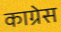
काग्रेस